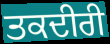
ਤਕਦੀਰੀ